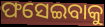
ଫସେଇବାକୁ